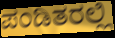
ಪಂಡಿತರಲ್ಲಿ